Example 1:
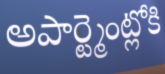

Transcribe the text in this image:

అపార్ట్మెంట్లోకి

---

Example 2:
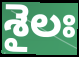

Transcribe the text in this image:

శైలః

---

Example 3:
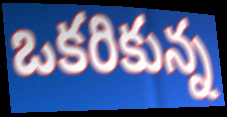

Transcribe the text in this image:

ఒకరికున్న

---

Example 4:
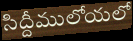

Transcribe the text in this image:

సిద్దీములోయలో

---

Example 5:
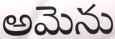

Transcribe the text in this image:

అమెను